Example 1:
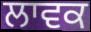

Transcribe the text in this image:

ਲਾਵਕ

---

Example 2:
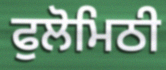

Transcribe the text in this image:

ਫੁਲੋਮਿਠੀ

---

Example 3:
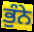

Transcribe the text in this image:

ਭੁੰਨੇ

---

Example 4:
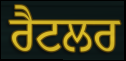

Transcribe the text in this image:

ਰੈਟਲਰ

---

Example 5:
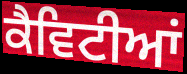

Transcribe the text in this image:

ਕੈਵਿਟੀਆਂ